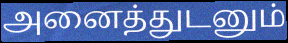
அனைத்துடனும்